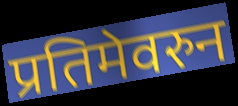
प्रतिमेवरुन